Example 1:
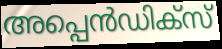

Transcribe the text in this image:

അപ്പെൻഡിക്സ്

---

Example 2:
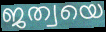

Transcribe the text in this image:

ജത്വയെ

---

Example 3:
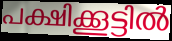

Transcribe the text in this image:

പക്ഷിക്കൂട്ടിൽ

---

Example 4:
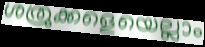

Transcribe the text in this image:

ശത്രുക്കളെയെല്ലാം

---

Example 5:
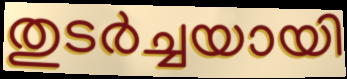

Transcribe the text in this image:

തുടർച്ചയായി